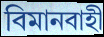
বিমানবাহী